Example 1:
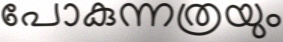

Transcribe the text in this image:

പോകുന്നത്രയും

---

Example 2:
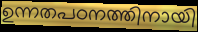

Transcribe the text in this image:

ഉന്നതപഠനത്തിനായി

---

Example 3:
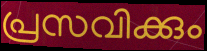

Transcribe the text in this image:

പ്രസവിക്കും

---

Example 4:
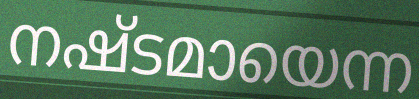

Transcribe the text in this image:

നഷ്ടമായെന്ന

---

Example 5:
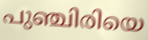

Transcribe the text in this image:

പുഞ്ചിരിയെ